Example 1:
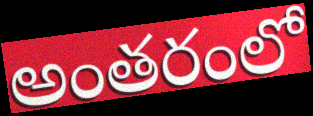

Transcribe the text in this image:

అంతరంలో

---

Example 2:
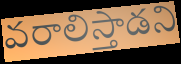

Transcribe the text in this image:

వరాలిస్తాడని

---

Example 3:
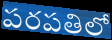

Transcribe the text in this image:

పరపతిలో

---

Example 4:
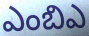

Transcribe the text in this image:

ఎంబిఎ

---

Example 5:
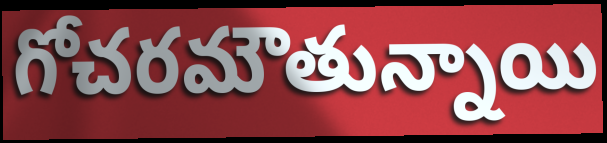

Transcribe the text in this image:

గోచరమౌతున్నాయి